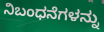
ನಿಬಂಧನೆಗಳನ್ನು